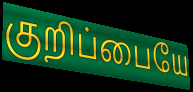
குறிப்பையே